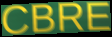
CBRE